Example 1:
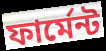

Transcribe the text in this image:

ফার্মেন্ট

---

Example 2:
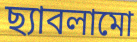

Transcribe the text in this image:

ছ্যাবলামো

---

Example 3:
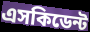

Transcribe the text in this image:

এসকিডেন্ট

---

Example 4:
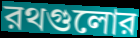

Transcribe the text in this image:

রথগুলোর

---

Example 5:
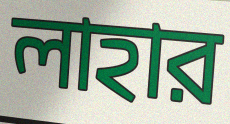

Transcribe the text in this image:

লাহার